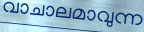
വാചാലമാവുന്ന